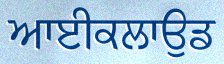
ਆਈਕਲਾਉਡ